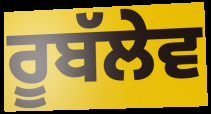
ਰੂਬੱਲੇਵ